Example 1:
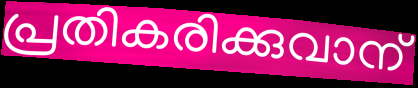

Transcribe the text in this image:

പ്രതികരിക്കുവാന്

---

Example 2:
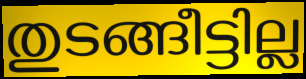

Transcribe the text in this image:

തുടങ്ങീട്ടില്ല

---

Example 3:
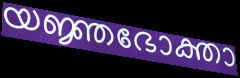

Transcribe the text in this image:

യജ്ഞഭോക്താ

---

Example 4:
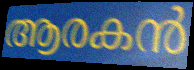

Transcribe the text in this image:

ആരകൻ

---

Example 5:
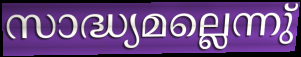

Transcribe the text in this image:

സാദ്ധ്യമല്ലെന്നു്